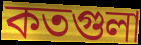
কতগুলা